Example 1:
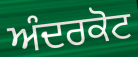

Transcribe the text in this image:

ਅੰਦਰਕੋਟ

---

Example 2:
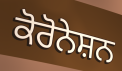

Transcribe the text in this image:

ਕੋਰੋਨੇਸ਼ਨ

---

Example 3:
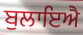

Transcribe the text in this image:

ਬੁਲਾਇਐ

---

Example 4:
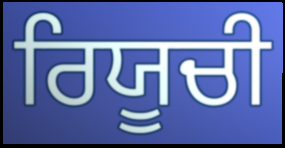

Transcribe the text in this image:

ਰਿਯੂਚੀ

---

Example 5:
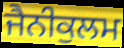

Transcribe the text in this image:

ਜੈਨੀਕੁਲਮ